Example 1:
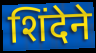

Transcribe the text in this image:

शिंदेने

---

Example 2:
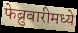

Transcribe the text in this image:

फेब्रुवारीमध्ये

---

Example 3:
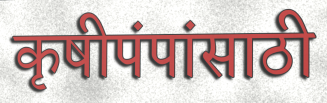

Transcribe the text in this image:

कृषीपंपांसाठी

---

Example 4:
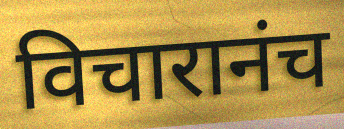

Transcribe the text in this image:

विचारानंच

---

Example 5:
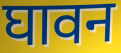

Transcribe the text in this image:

घावन